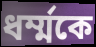
ধর্ম্মকে